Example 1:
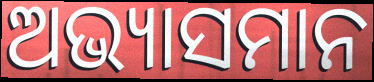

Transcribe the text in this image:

ଅଭ୍ୟାସମାନ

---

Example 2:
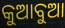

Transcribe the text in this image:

କୁଆବୁଆ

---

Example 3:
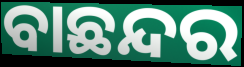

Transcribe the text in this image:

ବାଛନ୍ଦର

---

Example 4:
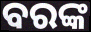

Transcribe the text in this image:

ବରଙ୍କ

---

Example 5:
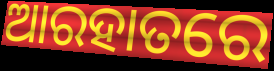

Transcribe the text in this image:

ଆରହାତରେ